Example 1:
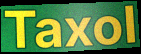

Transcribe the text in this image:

Taxol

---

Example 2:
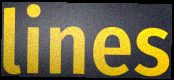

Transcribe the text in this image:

lines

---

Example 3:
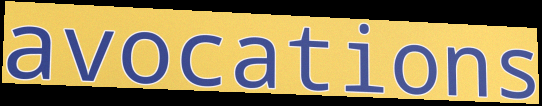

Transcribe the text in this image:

avocations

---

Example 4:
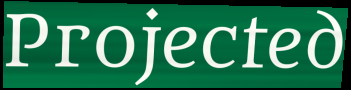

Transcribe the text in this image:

Projected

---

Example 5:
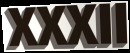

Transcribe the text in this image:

XXXII